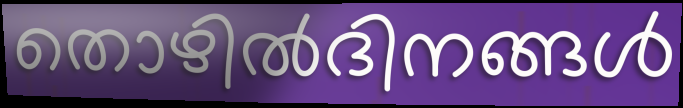
തൊഴിൽദിനങ്ങൾ